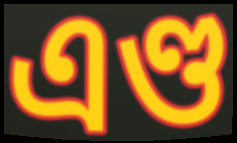
এণ্ড